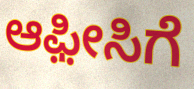
ಆಫ಼ೀಸಿಗೆ